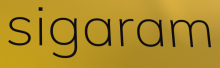
sigaram